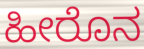
ಹೀರೊನ